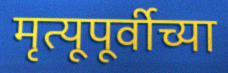
मृत्यूपूर्वीच्या